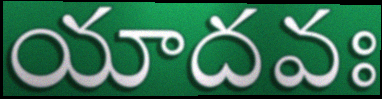
యాదవః